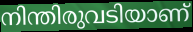
നിന്തിരുവടിയാണ്